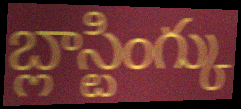
బ్లాస్టింగ్కు